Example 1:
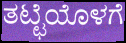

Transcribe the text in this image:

ತಟ್ಟೆಯೊಳಗೆ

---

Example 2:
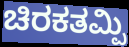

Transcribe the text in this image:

ಚಿರಕತಮ್ಪಿ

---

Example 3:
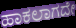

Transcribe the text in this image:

ಹಾಕಲಾಗದೇ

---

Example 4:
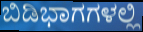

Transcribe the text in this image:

ಬಿಡಿಭಾಗಗಳಲ್ಲಿ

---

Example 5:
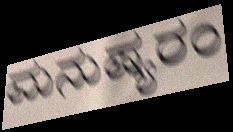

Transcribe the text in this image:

ಮನುಷ್ಯರಂ